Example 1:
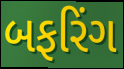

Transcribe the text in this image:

બફરિંગ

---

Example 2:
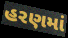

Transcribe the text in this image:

હરણમાં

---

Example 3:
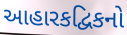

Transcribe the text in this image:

આહારકદ્વિકનો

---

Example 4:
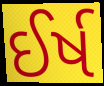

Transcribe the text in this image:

ઈર્ષ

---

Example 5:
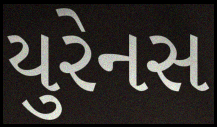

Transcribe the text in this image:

યુરેનસ